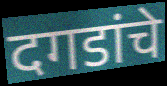
दगडांचे